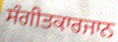
ਸੰਗੀਤਕਾਰਜਾਨ